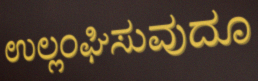
ಉಲ್ಲಂಘಿಸುವುದೂ